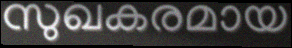
സുഖകരമായ